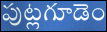
పుట్లగూడెం